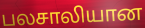
பலசாலியான